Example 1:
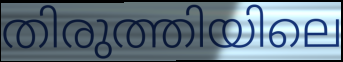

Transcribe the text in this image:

തിരുത്തിയിലെ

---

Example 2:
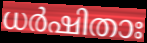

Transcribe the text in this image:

ധർഷിതാഃ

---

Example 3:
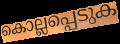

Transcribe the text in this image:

കൊല്ലപ്പെടുക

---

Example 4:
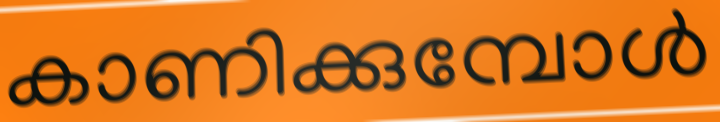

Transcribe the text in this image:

കാണിക്കുമ്പോൾ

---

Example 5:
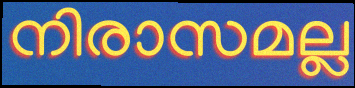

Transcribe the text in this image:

നിരാസമല്ല